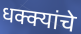
धक्क्यांचे